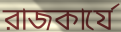
রাজকার্যে